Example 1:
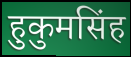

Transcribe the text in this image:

हुकुमसिंह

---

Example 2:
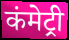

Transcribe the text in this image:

कंमेट्री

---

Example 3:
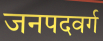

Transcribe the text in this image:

जनपदवर्ग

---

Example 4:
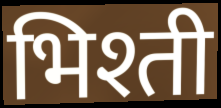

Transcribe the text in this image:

भिश्ती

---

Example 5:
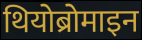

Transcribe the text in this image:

थियोब्रोमाइन